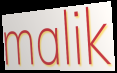
malik